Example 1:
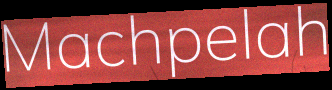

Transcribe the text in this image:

Machpelah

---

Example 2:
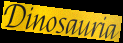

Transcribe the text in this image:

Dinosauria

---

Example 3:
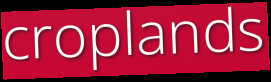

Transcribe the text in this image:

croplands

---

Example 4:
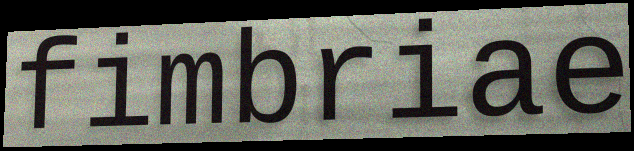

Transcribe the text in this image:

fimbriae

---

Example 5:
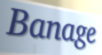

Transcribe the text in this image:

Banage